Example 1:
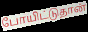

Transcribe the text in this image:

போயிட்டுதான்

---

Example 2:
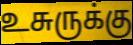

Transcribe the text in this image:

உசுருக்கு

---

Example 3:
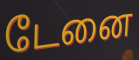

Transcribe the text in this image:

டேனை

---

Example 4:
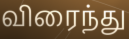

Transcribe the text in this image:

விரைந்து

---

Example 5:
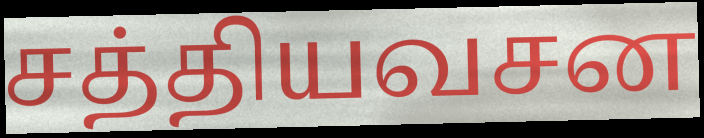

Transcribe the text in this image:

சத்தியவசன